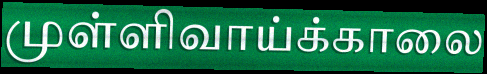
முள்ளிவாய்க்காலை